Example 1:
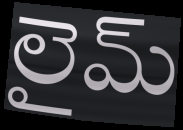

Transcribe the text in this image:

లైమ్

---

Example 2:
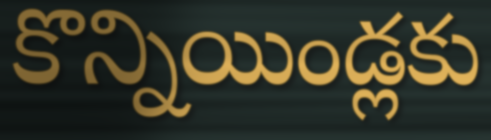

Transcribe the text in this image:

కొన్నియిండ్లకు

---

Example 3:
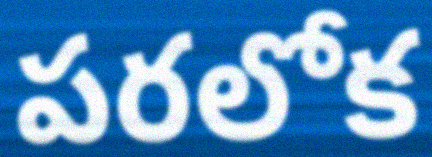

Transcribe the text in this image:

పరలోక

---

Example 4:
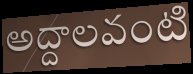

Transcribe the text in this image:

అద్దాలవంటి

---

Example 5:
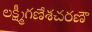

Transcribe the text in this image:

లక్ష్మీగణేశచరణౌ